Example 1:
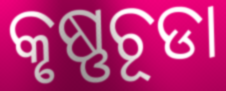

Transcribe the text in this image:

କୃଷ୍ଣଚୂଡା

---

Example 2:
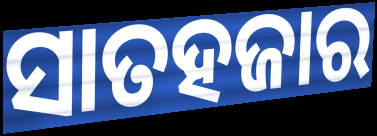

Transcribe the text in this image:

ସାତହଜାର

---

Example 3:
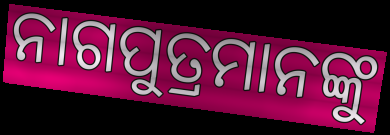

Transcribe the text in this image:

ନାଗପୁତ୍ରମାନଙ୍କୁ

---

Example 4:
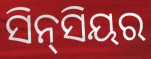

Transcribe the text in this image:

ସିନ୍‌ସିୟର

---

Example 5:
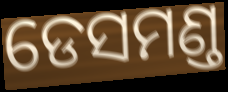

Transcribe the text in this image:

ଡେସମଣ୍ଡ